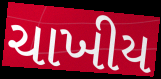
ચાખીય